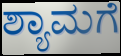
ಶ್ಯಾಮಗೆ